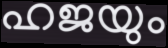
ഹജയും